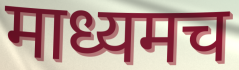
माध्यमच